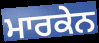
ਮਾਰਕੇਨ